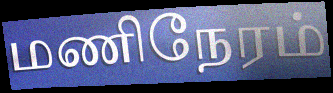
மணிநேரம்